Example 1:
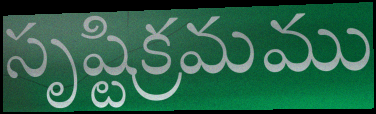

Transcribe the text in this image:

సృష్టిక్రమము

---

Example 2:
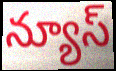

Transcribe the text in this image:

న్యూస్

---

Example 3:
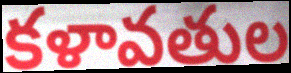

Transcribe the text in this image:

కళావతుల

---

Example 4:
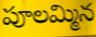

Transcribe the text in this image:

పూలమ్మిన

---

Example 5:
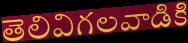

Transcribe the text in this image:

తెలివిగలవాడికి